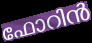
ഫോറിൻ